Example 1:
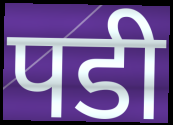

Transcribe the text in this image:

पडी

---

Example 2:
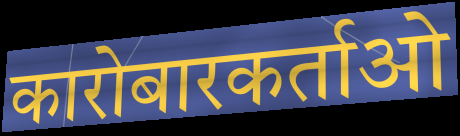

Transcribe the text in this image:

कारोबारकर्ताओ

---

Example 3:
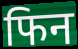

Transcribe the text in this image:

फिन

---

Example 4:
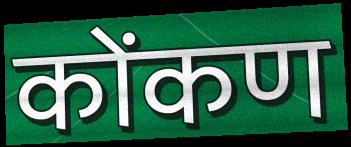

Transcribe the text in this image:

कोंकण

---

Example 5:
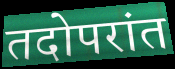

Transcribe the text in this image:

तदोपरांत